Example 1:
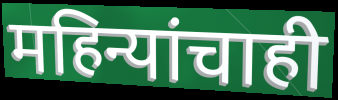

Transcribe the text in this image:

महिन्यांचाही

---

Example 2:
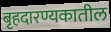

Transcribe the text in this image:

बृहदारण्यकातील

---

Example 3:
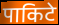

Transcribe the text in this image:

पाकिटे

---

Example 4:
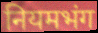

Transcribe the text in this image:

नियमभंग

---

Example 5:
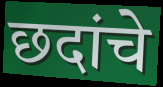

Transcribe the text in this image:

छदांचे